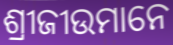
ଶ୍ରୀଜୀଉମାନେ